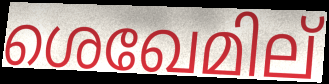
ശെഖേമില്